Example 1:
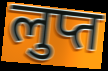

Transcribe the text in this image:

लुप्त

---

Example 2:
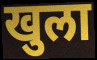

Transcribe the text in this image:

खुला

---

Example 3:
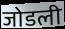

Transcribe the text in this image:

जोडली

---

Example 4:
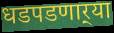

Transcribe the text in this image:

धडपडणार्या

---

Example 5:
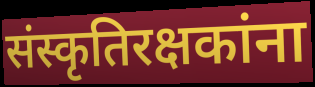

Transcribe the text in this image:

संस्कृतिरक्षकांना